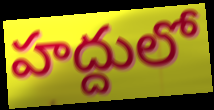
హద్దులో